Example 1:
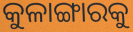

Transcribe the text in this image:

କୁଳାଙ୍ଗାରକୁ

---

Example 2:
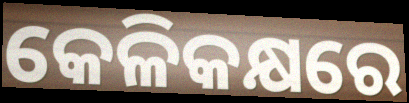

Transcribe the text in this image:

କେଳିକକ୍ଷରେ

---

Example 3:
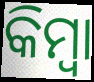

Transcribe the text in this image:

କିମ୍ଵା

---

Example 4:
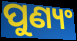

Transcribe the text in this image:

ପୁଣ୍ୟଂ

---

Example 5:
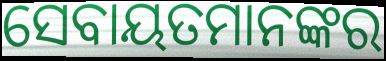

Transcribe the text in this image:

ସେବାୟତମାନଙ୍କର